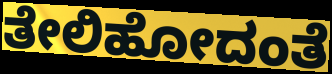
ತೇಲಿಹೋದಂತೆ